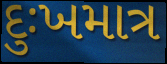
દુઃખમાત્ર